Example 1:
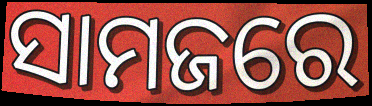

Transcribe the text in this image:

ସାମଜରେ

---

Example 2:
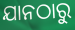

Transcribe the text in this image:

ଯାନଠାରୁ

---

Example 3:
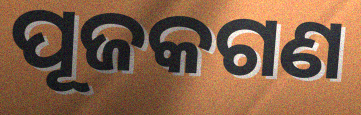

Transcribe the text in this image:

ପୂଜକଗଣ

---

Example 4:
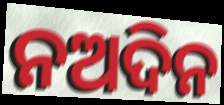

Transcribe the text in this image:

ନଅଦିନ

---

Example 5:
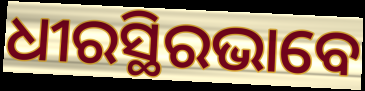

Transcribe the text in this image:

ଧୀରସ୍ଥିରଭାବେ